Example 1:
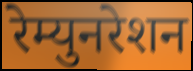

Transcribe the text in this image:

रेम्युनरेशन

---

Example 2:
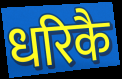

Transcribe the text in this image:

धरिकै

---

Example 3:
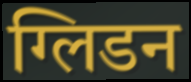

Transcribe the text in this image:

ग्लिडन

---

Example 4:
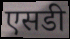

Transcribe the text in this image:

एसडी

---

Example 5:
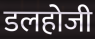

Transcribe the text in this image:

डलहोजी